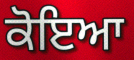
ਕੋਇਆ